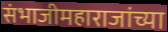
संभाजीमहाराजांच्या